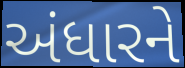
અંધારને